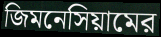
জিমনেসিয়ামের